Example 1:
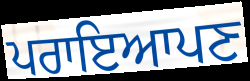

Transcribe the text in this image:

ਪਰਾਇਆਪਣ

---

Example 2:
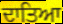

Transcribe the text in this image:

ਦਾਤਿਆ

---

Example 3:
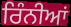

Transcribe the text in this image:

ਰਿੰਨੀਆਂ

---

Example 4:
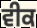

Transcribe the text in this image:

ਵੀਕ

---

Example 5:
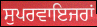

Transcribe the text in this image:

ਸੁਪਰਵਾਇਜਰਾਂ